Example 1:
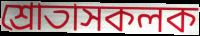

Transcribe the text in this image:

শ্ৰোতাসকলক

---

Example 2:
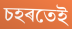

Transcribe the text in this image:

চহৰতেই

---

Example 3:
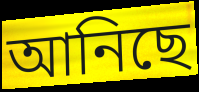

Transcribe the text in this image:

আনিছে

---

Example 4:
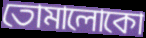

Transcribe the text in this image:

তোমালোকো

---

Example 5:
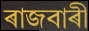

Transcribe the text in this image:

ৰাজবাৰী